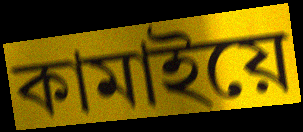
কামাইয়ে